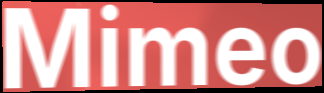
Mimeo